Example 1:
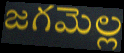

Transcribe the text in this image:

జగమెల్ల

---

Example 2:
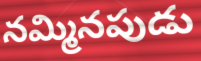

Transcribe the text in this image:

నమ్మినపుడు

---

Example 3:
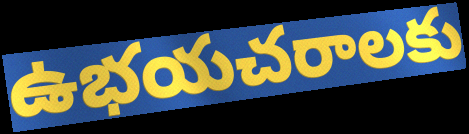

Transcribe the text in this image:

ఉభయచరాలకు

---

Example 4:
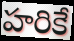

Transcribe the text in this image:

హరికే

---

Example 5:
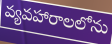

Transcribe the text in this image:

వ్యవహారాలలోను